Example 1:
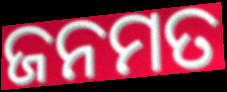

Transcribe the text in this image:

ଜନମତ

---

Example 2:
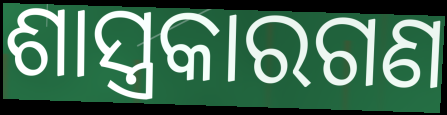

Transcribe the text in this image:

ଶାସ୍ତ୍ରକାରଗଣ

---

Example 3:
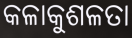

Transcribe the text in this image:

କଳାକୁଶଳତା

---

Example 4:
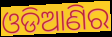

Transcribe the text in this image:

ଓଡିଆଣିର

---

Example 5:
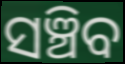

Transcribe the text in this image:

ସଞ୍ଚିବ